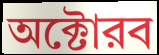
অক্টোরব